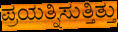
ಪ್ರಯತ್ನಿಸುತ್ತಿತ್ತು